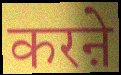
करऩे